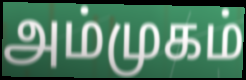
அம்முகம்